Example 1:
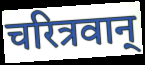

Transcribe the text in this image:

चरित्रवान्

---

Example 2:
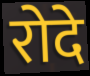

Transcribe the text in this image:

रोदे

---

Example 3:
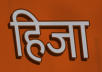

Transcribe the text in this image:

हिजा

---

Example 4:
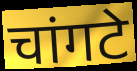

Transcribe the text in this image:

चांगटे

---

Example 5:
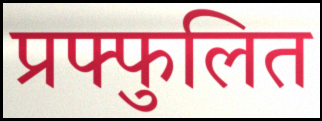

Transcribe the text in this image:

प्रफ्फुलित